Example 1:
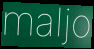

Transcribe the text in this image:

maljo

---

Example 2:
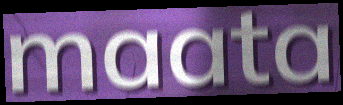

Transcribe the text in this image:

maata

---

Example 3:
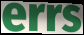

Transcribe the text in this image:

errs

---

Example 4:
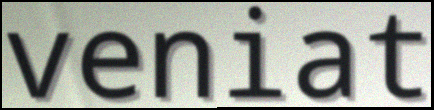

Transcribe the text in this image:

veniat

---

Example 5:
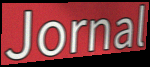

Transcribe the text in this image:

Jornal